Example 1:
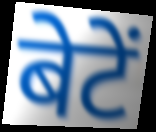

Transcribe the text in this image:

बेटें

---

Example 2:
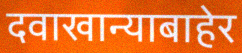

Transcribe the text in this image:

दवाखान्याबाहेर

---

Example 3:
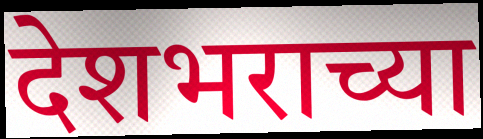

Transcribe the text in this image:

देशभराच्या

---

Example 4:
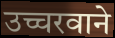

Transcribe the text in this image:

उच्चरवाने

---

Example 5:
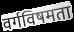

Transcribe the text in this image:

वर्गविषमता